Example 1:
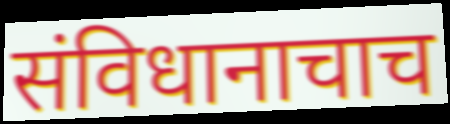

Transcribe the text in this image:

संविधानाचाच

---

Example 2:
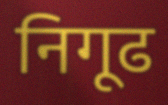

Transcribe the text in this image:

निगूढ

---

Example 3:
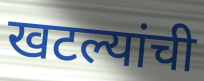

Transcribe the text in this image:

खटल्यांची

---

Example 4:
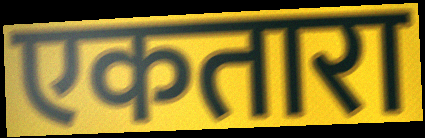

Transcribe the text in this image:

एकतारा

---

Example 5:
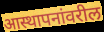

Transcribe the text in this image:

आस्थापनांवरील